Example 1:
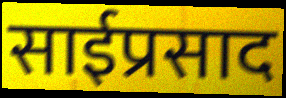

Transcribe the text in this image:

साईप्रसाद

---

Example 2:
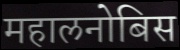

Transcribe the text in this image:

महालनोबिस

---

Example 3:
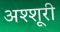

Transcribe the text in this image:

अश्‍शूरी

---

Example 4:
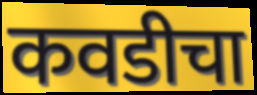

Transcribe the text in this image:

कवडीचा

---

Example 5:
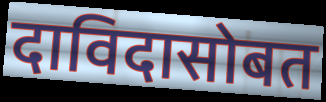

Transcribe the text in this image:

दाविदासोबत